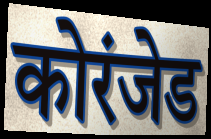
कोरंजेड